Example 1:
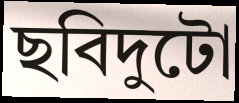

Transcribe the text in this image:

ছবিদুটো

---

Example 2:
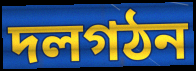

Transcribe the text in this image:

দলগঠন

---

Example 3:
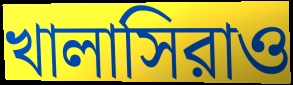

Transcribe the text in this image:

খালাসিরাও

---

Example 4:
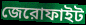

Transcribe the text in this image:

জেরোফাইট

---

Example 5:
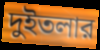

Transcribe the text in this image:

দুইতলার